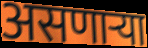
असणाऱ्या